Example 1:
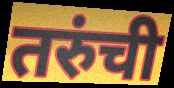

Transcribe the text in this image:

तरुंची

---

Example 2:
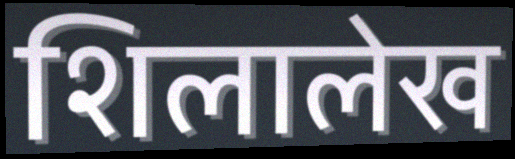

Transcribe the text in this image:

शिलालेख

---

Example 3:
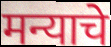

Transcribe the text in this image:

मन्याचे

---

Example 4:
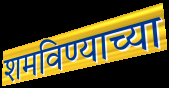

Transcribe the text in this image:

शमविण्याच्या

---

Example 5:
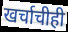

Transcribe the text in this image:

खर्चाचीही